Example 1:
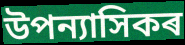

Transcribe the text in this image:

উপন্যাসিকৰ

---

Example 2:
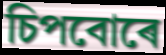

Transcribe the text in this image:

চিপবোৰে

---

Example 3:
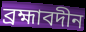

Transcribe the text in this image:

ব্ৰহ্মাবদীন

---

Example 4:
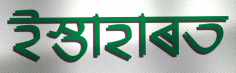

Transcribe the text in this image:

ইস্তাহাৰত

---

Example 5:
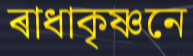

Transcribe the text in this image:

ৰাধাকৃষ্ণনে